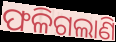
ଫଳିଗଲାଣି